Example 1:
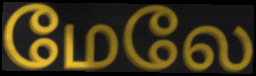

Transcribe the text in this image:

மேலே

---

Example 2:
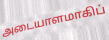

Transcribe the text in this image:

அடையாளமாகிப்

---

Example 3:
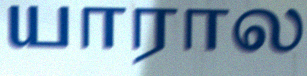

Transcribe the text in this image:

யாரால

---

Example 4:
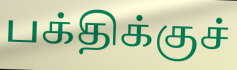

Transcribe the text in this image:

பக்திக்குச்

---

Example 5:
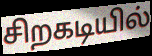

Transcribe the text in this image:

சிறகடியில்